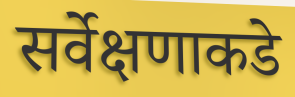
सर्वेक्षणाकडे